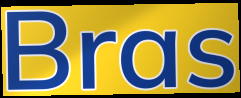
Bras